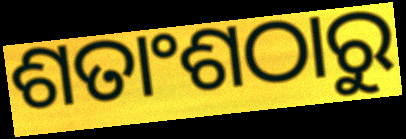
ଶତାଂଶଠାରୁ